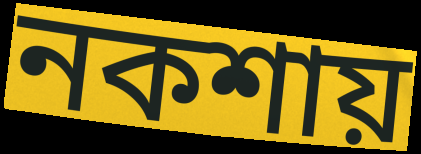
নকশায়